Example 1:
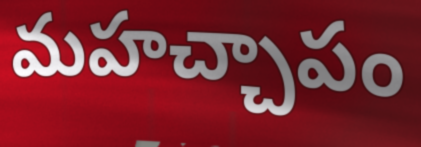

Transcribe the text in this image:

మహచ్చాపం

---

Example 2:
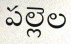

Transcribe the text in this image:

పల్లెల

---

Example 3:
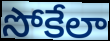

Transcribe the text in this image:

సోకేలా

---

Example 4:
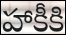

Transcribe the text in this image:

హాకీకి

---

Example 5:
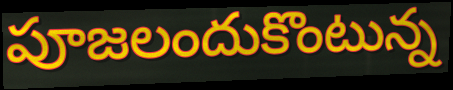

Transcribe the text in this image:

పూజలందుకొంటున్న